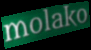
molako